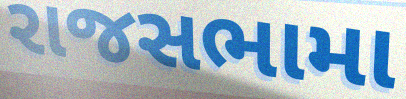
રાજસભામા